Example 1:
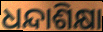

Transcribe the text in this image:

ଧନ୍ଦାଶିକ୍ଷା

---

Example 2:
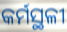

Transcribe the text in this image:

କର୍ମସ୍ଥଳୀ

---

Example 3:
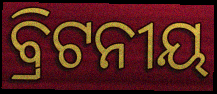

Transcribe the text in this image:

ବ୍ରିଟନୀୟ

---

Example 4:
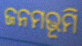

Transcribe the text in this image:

ଜନମଭୂମି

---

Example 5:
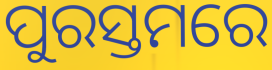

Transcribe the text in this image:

ପୁରସ୍ତମରେ